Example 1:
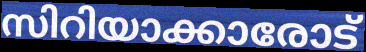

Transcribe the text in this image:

സിറിയാക്കാരോട്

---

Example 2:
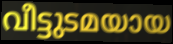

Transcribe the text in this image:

വീട്ടുടമയായ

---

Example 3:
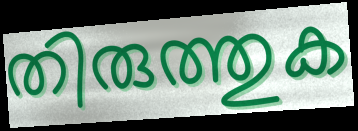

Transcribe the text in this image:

തിരുത്തുക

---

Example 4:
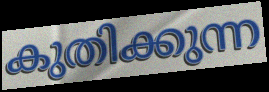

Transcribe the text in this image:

കുതിക്കുന്ന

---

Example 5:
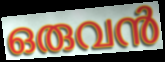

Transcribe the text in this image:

ഒരുവൻ